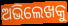
ଅଭିଲେଖକୁ